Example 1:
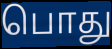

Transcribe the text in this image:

பொது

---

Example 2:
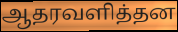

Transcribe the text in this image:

ஆதரவளித்தன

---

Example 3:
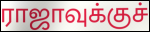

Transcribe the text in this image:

ராஜாவுக்குச்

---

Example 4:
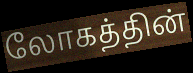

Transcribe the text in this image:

லோகத்தின்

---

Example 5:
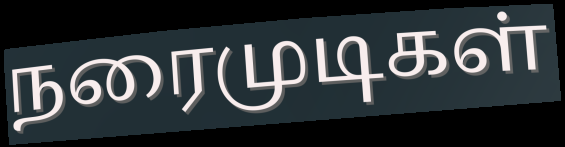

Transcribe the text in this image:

நரைமுடிகள்